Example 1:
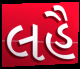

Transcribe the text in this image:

લહૈ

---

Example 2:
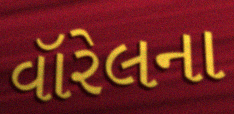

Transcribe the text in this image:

વૉરેલના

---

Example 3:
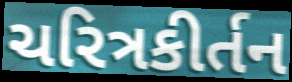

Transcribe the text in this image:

ચરિત્રકીર્તન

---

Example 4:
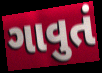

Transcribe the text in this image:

ગાવુતં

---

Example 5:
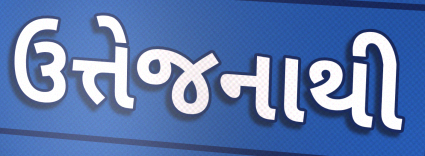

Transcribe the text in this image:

ઉત્તેજનાથી